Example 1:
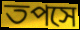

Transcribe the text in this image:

তপসে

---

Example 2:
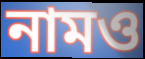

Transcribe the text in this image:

নামও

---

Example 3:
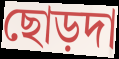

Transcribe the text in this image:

ছোড়দা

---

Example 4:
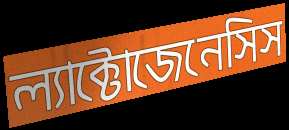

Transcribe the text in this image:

ল্যাক্টোজেনেসিস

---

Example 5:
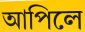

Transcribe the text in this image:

আপিলে